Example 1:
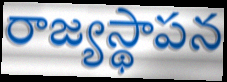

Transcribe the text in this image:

రాజ్యస్థాపన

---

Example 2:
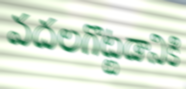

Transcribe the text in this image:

వదలగొట్టడానికి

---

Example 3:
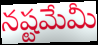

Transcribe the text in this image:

నష్టమేమీ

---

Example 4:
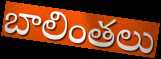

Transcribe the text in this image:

బాలింతలు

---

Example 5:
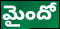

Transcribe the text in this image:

మైందో